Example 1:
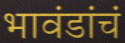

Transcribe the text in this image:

भावंडांचं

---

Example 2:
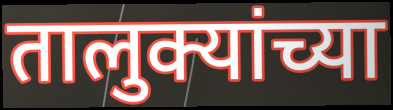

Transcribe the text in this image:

तालुक्यांच्या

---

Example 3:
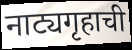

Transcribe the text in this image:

नाट्यगृहाची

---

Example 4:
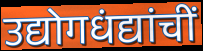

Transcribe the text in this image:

उद्योगधंद्यांचीं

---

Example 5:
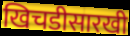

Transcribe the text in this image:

खिचडीसारखी